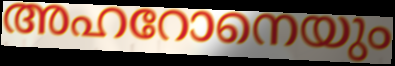
അഹറോനെയും